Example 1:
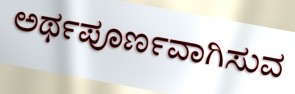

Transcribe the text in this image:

ಅರ್ಥಪೂರ್ಣವಾಗಿಸುವ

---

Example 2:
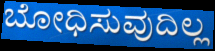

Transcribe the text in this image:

ಬೋಧಿಸುವುದಿಲ್ಲ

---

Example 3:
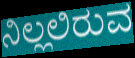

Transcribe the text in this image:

ನಿಲ್ಲಲಿರುವ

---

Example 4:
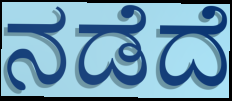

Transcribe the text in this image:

ನಡೆದೆ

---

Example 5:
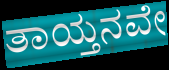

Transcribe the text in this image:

ತಾಯ್ತನವೇ